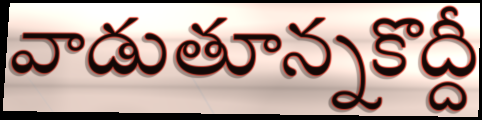
వాడుతూన్నకొద్దీ